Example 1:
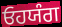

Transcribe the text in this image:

ਓਹਯੰਗ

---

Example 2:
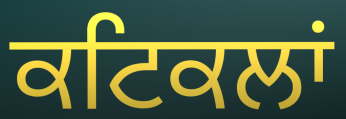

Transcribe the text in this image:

ਕਟਿਕਲਾਂ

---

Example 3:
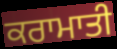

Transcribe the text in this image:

ਕਰਾਮਾਤੀ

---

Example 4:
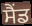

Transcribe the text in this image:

ਸੈਂਡ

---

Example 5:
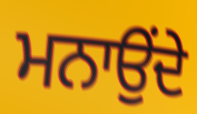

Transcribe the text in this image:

ਮਨਾਉਂਦੇ